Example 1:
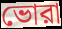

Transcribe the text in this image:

ভোরা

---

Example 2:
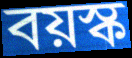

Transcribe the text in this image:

বয়স্ক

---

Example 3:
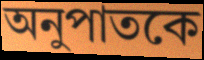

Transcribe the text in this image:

অনুপাতকে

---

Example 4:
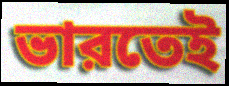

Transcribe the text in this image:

ভারতেই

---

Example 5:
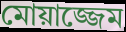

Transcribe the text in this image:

মোয়াজ্জেম